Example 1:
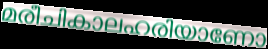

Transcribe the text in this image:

മരീചികാലഹരിയാണോ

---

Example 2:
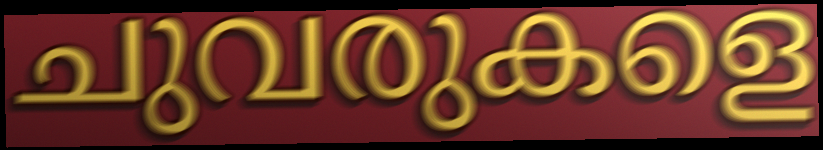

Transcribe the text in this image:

ചുവരുകളെ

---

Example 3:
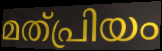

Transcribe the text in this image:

മത്പ്രിയം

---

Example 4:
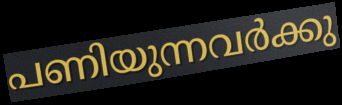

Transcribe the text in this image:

പണിയുന്നവർക്കു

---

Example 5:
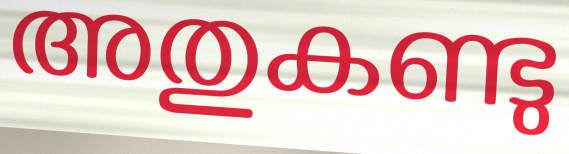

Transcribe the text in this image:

അതുകണ്ടു